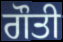
ਗੌਤੀ